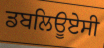
ਡਬਲਿਊਏਸੀ